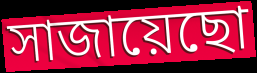
সাজায়েছো